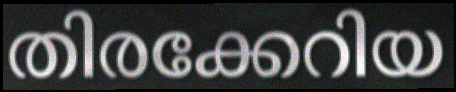
തിരക്കേറിയ